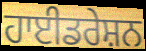
ਹਾਈਡਰੇਸ਼ਨ